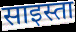
साइस्ता